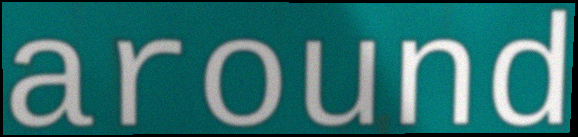
around